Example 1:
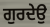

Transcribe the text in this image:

ਗੁਰਦੇਉ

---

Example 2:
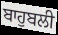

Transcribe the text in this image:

ਬਾਹੁਬਲੀ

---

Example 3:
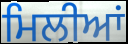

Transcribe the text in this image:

ਮਿਲੀਆਂ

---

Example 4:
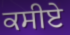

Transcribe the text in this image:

ਕਸੀਏ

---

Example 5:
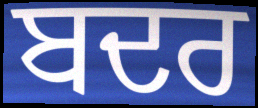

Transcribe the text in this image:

ਬਦਰ